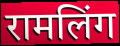
रामलिंग